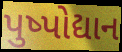
પુષ્પોદ્યાન